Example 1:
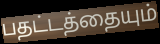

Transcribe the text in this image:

பதட்டத்தையும்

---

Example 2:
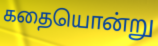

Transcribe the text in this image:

கதையொன்று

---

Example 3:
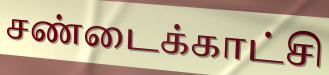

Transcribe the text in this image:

சண்டைக்காட்சி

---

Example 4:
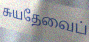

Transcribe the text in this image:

சுயதேவைப்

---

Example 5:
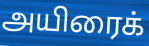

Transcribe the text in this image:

அயிரைக்